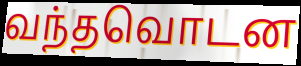
வந்தவொடன